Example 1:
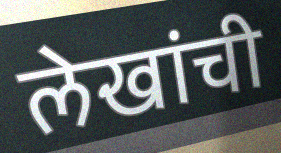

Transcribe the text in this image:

लेखांची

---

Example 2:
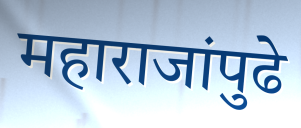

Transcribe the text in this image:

महाराजांपुढे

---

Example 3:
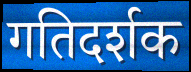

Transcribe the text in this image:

गतिदर्शक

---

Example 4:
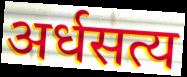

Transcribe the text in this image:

अर्धसत्य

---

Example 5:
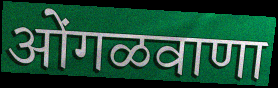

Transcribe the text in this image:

ओंगळवाणा